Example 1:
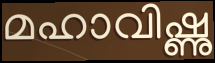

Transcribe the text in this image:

മഹാവിഷ്ണു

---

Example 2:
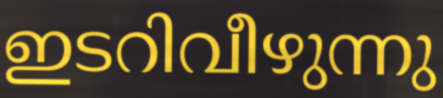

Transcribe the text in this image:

ഇടറിവീഴുന്നു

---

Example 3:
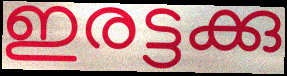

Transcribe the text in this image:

ഇരട്ടക്കു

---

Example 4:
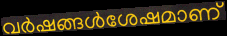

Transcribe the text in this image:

വർഷങ്ങൾശേഷമാണ്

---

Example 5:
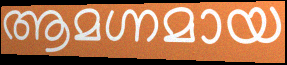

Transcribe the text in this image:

ആമഗ്നമായ